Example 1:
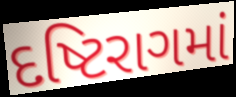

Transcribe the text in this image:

દષ્ટિરાગમાં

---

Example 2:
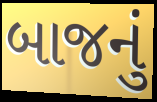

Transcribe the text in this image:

બાજનું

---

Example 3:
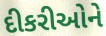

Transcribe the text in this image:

દીકરીઓને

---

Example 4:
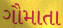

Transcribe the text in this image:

ગૌમાતા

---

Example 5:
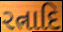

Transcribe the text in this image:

રત્નાદિ